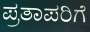
ಪ್ರತಾಪರಿಗೆ